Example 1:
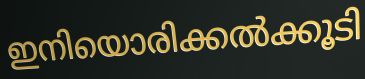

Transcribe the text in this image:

ഇനിയൊരിക്കൽക്കൂടി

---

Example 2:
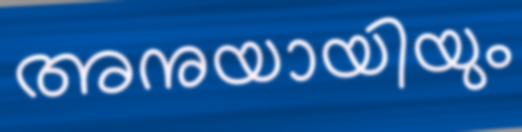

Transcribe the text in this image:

അനുയായിയും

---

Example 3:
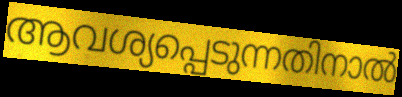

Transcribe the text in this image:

ആവശ്യപ്പെടുന്നതിനാൽ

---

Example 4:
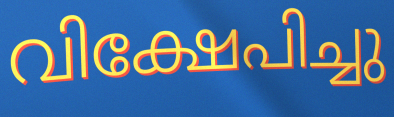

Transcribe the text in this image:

വിക്ഷേപിച്ചു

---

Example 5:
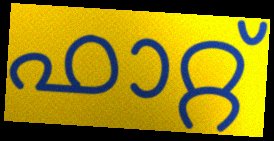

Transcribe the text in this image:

ഫാറ്റ്